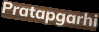
Pratapgarhi